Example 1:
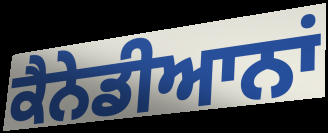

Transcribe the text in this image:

ਕੈਨੇਡੀਆਨਾਂ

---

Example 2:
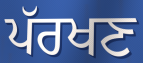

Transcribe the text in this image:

ਪੱਰਖਣ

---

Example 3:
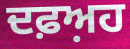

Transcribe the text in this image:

ਦਫ਼ਅ਼ਹ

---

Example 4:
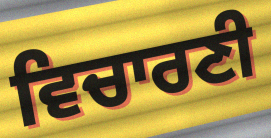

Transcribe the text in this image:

ਵਿਚਾਰਣੀ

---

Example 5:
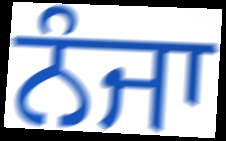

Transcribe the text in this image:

ਨੰਜਾ